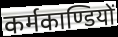
कर्मकाण्डियों